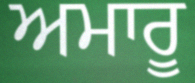
ਅਮਾਰੂ